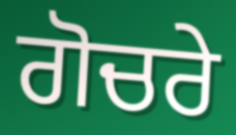
ਗੋਚਰੇ